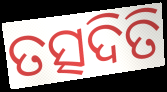
ତତ୍ସଦିତି